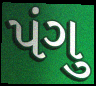
પંગુ